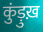
कुंड़ुख़